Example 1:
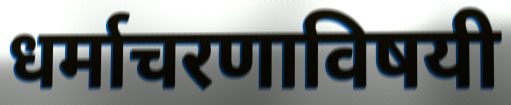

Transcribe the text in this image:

धर्माचरणाविषयी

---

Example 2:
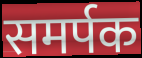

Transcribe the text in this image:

समर्पक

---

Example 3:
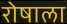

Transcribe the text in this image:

रोषाला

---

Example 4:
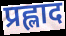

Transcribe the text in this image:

प्रह्लाद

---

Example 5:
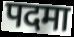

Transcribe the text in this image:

पदमा